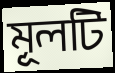
মূলটি